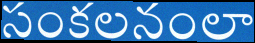
సంకలనంలా